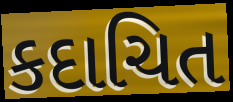
કદાચિત